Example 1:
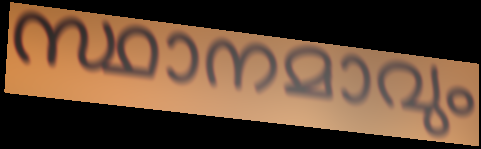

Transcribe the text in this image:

സ്ഥാനമാവും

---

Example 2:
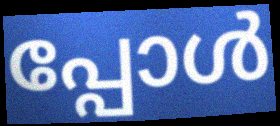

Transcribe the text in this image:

പ്പോൾ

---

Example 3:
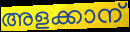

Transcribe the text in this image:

അളക്കാന്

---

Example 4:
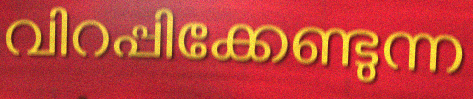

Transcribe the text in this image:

വിറപ്പിക്കേണ്ടുന്ന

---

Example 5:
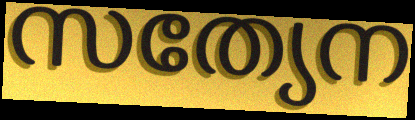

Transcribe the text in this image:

സത്യേന